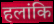
हलांकि